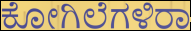
ಕೋಗಿಲೆಗಳಿರಾ